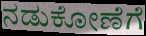
ನಡುಕೋಣೆಗೆ